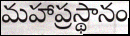
మహాప్రస్థానం